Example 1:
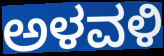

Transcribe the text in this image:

ಅಳವಳಿ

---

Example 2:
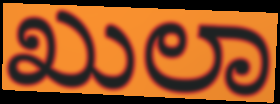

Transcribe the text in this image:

ಖುಲಾ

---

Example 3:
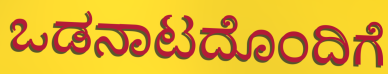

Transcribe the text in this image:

ಒಡನಾಟದೊಂದಿಗೆ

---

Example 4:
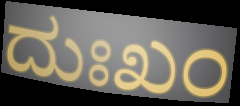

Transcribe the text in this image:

ದುಃಖಂ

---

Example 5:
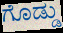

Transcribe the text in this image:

ಗೊಡ್ಡು